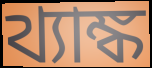
থ্যাঙ্ক